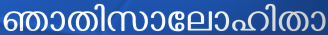
ഞാതിസാലോഹിതാ